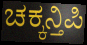
ಚಕ್ಕನ್ತಿಪಿ